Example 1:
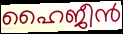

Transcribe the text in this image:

ഹൈജീൻ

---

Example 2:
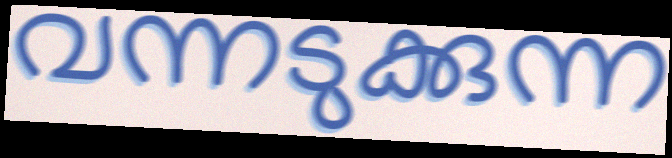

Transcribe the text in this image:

വന്നടുക്കുന്ന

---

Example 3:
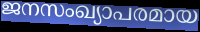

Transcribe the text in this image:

ജനസംഖ്യാപരമായ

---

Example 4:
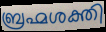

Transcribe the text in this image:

ബ്രഹ്മശക്തി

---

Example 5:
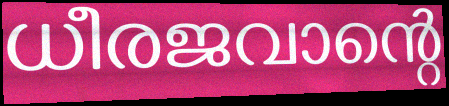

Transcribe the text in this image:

ധീരജവാന്റെ